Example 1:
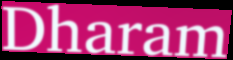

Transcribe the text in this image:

Dharam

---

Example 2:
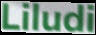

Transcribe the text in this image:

Liludi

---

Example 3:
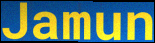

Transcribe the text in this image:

Jamun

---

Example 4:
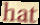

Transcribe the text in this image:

hat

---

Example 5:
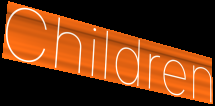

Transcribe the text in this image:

Children